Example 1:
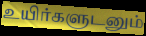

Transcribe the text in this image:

உயிர்களுடனும்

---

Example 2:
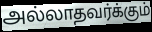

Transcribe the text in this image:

அல்லாதவர்க்கும்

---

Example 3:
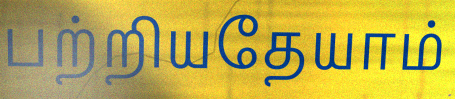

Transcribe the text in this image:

பற்றியதேயாம்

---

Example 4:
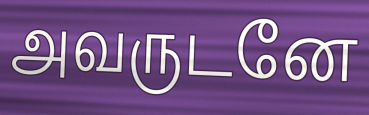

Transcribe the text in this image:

அவருடனே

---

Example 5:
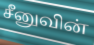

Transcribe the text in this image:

சீனுவின்